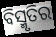
ବିସ୍ମୃତିର